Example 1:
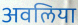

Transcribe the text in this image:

अवलिया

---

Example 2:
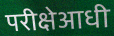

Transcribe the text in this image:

परीक्षेआधी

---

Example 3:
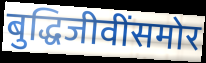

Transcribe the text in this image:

बुद्धिजीवींसमोर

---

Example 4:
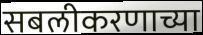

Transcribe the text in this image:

सबलीकरणाच्या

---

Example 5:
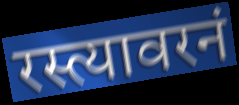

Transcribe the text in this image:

रस्त्यावरनं